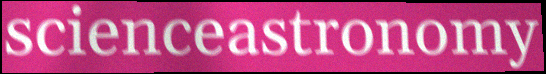
scienceastronomy